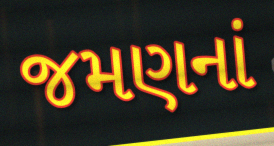
જમણનાં